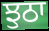
ਝੁਠਾ